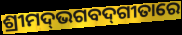
ଶ୍ରୀମଦ୍‌ଭଗବଦ୍‌ଗୀତାରେ